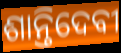
ଶାନ୍ତିଦେବୀ